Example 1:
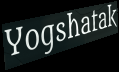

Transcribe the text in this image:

Yogshatak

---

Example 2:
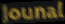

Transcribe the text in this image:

Jounal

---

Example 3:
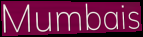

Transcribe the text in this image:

Mumbais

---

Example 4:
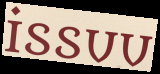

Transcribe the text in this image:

issuu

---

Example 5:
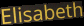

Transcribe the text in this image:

Elisabeth